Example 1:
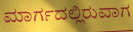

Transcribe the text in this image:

ಮಾರ್ಗದಲ್ಲಿರುವಾಗ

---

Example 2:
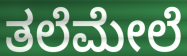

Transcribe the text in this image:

ತಲೆಮೇಲೆ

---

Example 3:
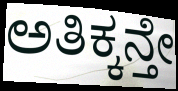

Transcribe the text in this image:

ಅತಿಕ್ಕನ್ತೇ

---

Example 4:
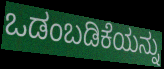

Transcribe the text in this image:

ಒಡಂಬಡಿಕೆಯನ್ನು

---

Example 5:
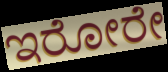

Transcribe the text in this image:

ಇರೋರೇ